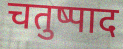
चतुष्पाद